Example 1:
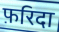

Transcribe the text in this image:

फ़रिदा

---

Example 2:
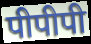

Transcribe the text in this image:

पीपीपी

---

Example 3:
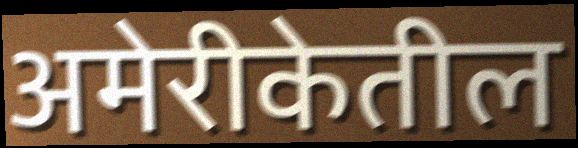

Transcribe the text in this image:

अमेरीकेतील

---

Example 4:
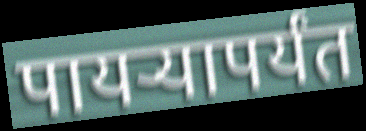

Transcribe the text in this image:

पायऱ्यापर्यंत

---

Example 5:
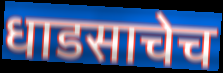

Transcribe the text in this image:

धाडसाचेच